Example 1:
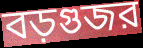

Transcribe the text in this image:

বড়গুজর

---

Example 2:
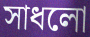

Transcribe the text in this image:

সাধলো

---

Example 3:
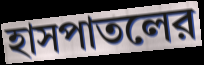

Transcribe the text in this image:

হাসপাতলের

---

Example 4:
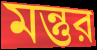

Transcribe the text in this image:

মন্তুর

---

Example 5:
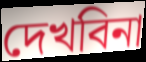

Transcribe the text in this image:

দেখবিনা